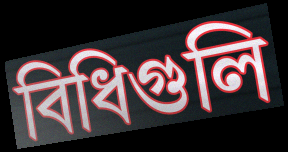
বিধিগুলি